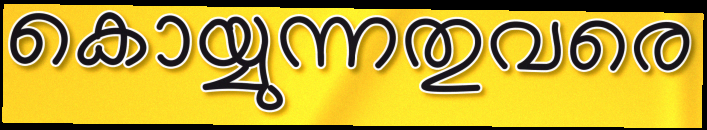
കൊയ്യുന്നതുവരെ